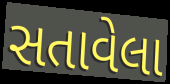
સતાવેલા